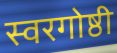
स्वरगोष्ठी